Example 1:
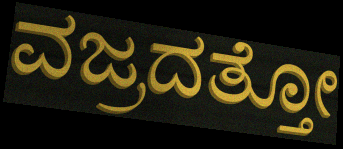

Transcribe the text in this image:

ವಜ್ರದತ್ತೋ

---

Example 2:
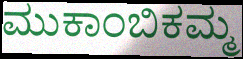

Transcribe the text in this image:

ಮುಕಾಂಬಿಕಮ್ಮ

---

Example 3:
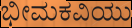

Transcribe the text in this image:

ಭೀಮಕವಿಯು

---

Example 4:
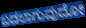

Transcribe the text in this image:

ಬದಲಾಗುವುದೋ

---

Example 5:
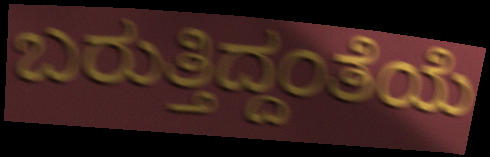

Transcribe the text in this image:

ಬರುತ್ತಿದ್ದಂತೆಯೆ